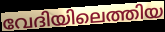
വേദിയിലെത്തിയ